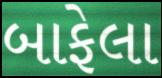
બાફેલા